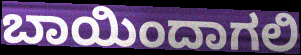
ಬಾಯಿಂದಾಗಲಿ